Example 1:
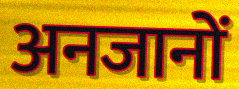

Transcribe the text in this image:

अनजानों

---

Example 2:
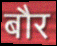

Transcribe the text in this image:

बौर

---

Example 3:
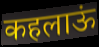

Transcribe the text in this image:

कहलाऊं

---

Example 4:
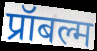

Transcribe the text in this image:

प्रॉबल्म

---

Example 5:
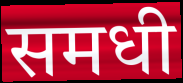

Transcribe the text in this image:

समधी